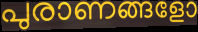
പുരാണങ്ങളോ